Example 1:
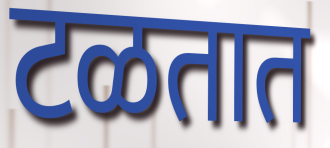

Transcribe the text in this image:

टळतात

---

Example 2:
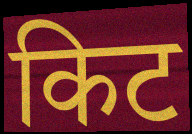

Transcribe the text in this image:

किट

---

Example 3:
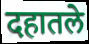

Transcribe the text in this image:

दहातले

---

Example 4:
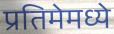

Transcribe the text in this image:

प्रतिमेमध्ये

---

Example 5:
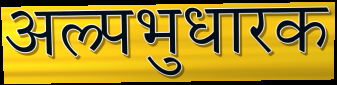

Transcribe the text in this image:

अल्पभुधारक